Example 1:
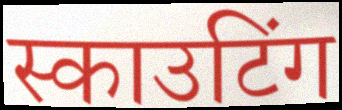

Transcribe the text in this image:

स्काउटिंग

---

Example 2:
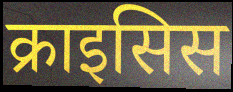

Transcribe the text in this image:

क्राइसिस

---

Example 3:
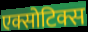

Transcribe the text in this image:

एक्सोटिक्स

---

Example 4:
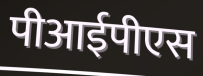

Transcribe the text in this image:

पीआईपीएस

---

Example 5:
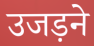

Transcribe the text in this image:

उजड़ने